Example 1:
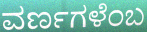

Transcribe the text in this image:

ವರ್ಣಗಳೆಂಬ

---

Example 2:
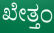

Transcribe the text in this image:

ಖೇತ್ತಂ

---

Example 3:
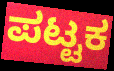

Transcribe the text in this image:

ಪಟ್ಟಕ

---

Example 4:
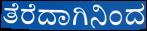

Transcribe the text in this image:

ತೆರೆದಾಗಿನಿಂದ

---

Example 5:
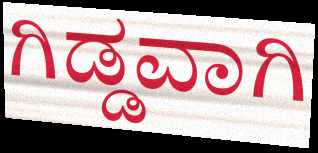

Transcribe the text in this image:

ಗಿಡ್ಡವಾಗಿ